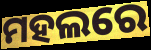
ମହଲରେ